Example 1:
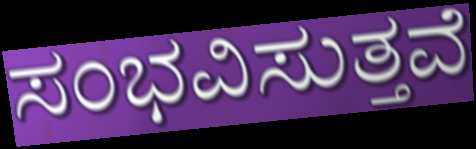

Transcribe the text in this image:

ಸಂಭವಿಸುತ್ತವೆ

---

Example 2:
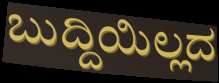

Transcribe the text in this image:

ಬುದ್ದಿಯಿಲ್ಲದ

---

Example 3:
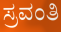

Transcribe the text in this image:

ಸ್ರವಂತಿ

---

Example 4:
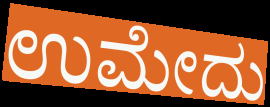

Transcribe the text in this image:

ಉಮೇದು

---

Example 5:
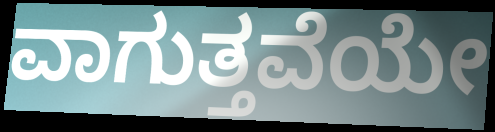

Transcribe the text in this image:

ವಾಗುತ್ತವೆಯೇ